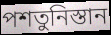
পশতুনিস্তান